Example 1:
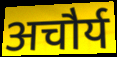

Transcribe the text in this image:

अचौर्य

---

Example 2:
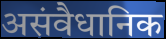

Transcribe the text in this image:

असंवैधानिक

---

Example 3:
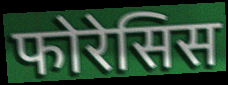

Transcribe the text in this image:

फोरेसिस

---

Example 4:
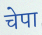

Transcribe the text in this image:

चेपा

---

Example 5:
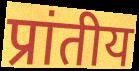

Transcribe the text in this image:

प्रांतीय